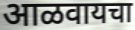
आळवायचा